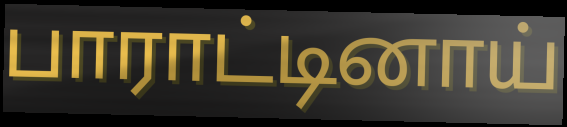
பாராட்டினாய்